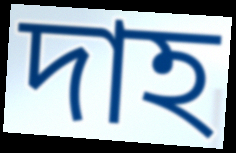
দাহ